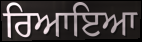
ਰਿਆਇਆ